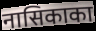
नासिकाका